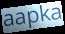
aapka